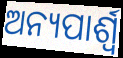
ଅନ୍ୟପାର୍ଶ୍ୱ